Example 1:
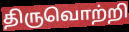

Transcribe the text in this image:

திருவொற்றி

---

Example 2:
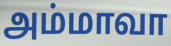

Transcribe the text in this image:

அம்மாவா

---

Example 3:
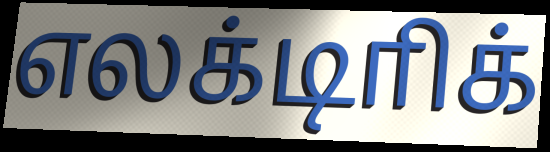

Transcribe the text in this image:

எலக்டிரிக்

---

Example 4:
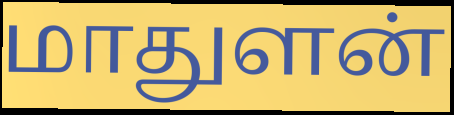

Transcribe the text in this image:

மாதுளன்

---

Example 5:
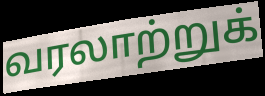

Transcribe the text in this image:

வரலாற்றுக்